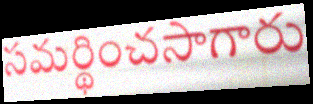
సమర్థించసాగారు